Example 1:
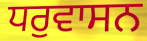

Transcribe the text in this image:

ਧਰੁਵਾਸਨ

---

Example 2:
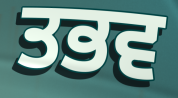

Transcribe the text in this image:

ਤਭਵ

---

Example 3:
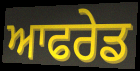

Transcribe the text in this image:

ਆਫਰੇਡ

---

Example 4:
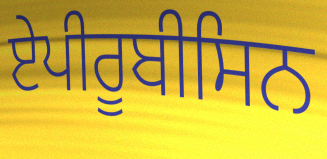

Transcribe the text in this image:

ਏਪੀਰੂਬੀਸਿਨ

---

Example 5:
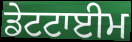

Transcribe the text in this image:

ਡੇਟਟਾਈਮ